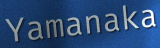
Yamanaka